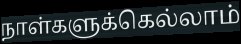
நாள்களுக்கெல்லாம்